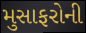
મુસાફરોની